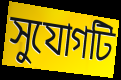
সুযোগটি